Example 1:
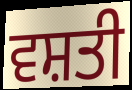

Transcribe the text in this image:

ਵਸ਼ਤੀ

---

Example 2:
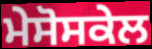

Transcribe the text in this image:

ਮੇਸੋਸਕੇਲ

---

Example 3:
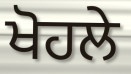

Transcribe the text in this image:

ਖੋਹਲੇ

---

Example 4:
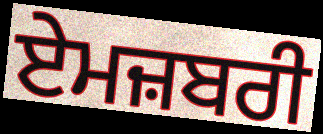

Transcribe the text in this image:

ਏਮਜ਼ਬਰੀ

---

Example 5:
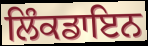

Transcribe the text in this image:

ਲਿੰਕਡਾਇਨ